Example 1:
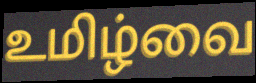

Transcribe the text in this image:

உமிழ்வை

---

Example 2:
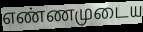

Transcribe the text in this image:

எண்ணமுடைய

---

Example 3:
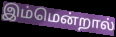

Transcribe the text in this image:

இம்மென்றால்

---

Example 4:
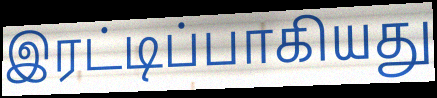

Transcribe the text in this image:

இரட்டிப்பாகியது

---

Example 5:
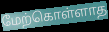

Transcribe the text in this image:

மேற்கொள்ளாத